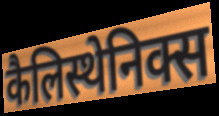
कैलिस्थेनिक्स